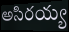
అసిరయ్య